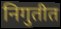
निगुतीत